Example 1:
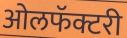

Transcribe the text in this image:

ओलफॅक्टरी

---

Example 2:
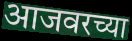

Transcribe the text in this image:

आजवरच्या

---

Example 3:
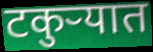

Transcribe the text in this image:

टकुऱ्यात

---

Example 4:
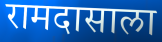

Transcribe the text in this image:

रामदासाला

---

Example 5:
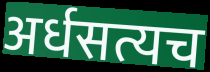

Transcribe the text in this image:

अर्धसत्यच